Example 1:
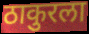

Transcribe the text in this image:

ठाकुरला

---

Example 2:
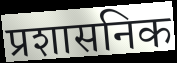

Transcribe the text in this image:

प्रशासनिक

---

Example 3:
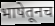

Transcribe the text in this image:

भाषेतूनच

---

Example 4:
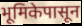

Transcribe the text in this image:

भूमिकेपासून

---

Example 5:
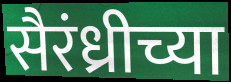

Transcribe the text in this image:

सैरंध्रीच्या